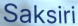
Saksiri